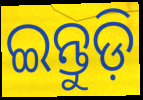
ଇନ୍ତୁଡ଼ି